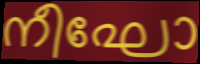
നീഘോ